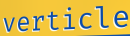
verticle